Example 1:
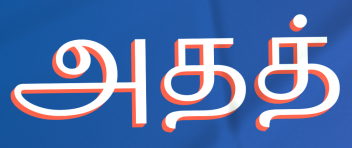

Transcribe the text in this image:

அதத்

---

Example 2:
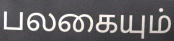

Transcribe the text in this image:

பலகையும்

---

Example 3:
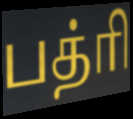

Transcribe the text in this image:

பத்ரி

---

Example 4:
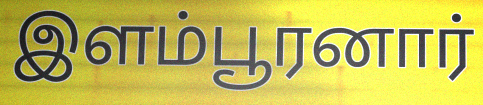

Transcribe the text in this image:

இளம்பூரனார்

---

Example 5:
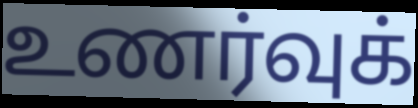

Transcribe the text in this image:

உணர்வுக்